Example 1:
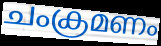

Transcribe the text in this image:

ചംക്രമണം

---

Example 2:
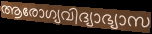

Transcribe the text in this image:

ആരോഗ്യവിദ്യാഭ്യാസ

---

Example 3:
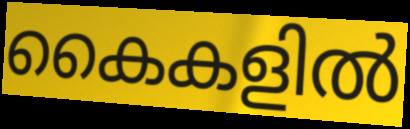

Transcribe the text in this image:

കൈകളിൽ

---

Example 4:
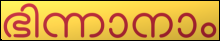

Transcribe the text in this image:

ഭിന്നാനാം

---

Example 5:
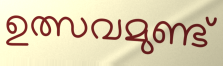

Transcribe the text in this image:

ഉത്സവമുണ്ട്